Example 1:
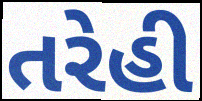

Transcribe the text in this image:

તરેહી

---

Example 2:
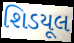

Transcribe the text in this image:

શિડયૂલ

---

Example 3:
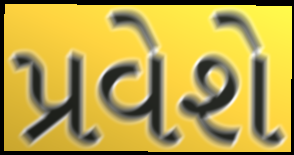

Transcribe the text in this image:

પ્રવેશે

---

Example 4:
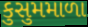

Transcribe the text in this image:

કુસુમમાળા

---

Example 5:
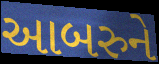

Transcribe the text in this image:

આબરુને